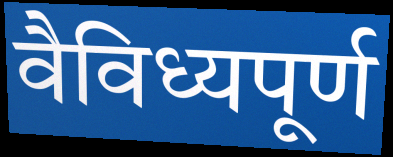
वैविध्यपूर्ण